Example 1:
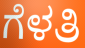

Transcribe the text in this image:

ಗೆಳತಿ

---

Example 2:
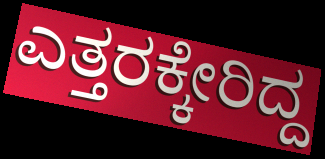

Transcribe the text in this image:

ಎತ್ತರಕ್ಕೇರಿದ್ದ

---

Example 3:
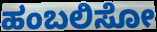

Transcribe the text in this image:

ಹಂಬಲಿಸೋ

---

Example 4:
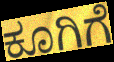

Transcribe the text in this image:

ಕೂಗಿಗೆ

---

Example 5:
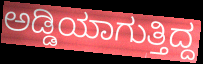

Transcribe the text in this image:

ಅಡ್ಡಿಯಾಗುತ್ತಿದ್ದ